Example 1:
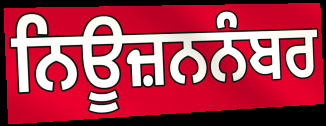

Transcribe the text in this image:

ਨਿਊਜ਼ਨਨੰਬਰ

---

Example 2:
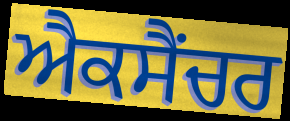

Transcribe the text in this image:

ਐਕਸੈਂਚਰ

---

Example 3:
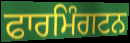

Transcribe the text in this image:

ਫਾਰਮਿੰਗਟਨ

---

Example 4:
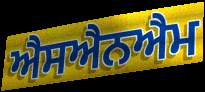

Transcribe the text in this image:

ਐਸਐਨਐਮ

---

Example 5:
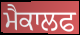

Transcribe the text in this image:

ਮੈਕਾਲਫ